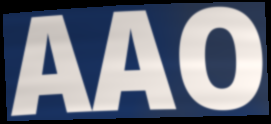
AAO